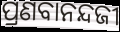
ପ୍ରଣବାନନ୍ଦଜୀ